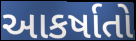
આકર્ષાતો